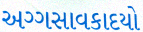
અગ્ગસાવકાદયો